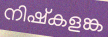
നിഷ്കളങ്ക